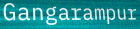
Gangarampur